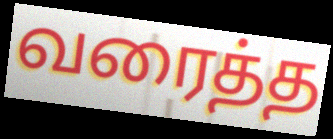
வரைத்த